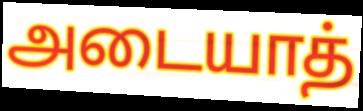
அடையாத்